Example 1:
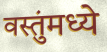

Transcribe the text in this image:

वस्तुंमध्ये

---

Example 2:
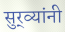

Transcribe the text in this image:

सुर्व्यांनी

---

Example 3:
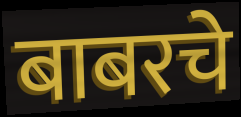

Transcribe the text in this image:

बाबरचे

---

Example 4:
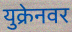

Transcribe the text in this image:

युक्रेनवर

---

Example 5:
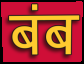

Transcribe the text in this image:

बंब